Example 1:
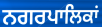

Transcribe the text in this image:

ਨਗਰਪਾਲਿਕਾਂ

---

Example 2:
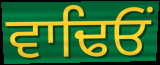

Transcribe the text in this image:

ਵਾਢਿਓਂ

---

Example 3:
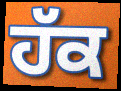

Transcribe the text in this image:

ਹੱਕ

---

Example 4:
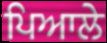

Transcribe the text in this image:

ਪਿਆਲੇ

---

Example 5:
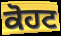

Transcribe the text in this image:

ਕੋਹਟ